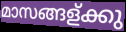
മാസങ്ങള്ക്കു